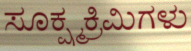
ಸೂಕ್ಷ್ಮಕ್ರಿಮಿಗಳು